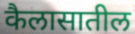
कैलासातील